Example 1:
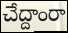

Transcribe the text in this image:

చేద్దాంరా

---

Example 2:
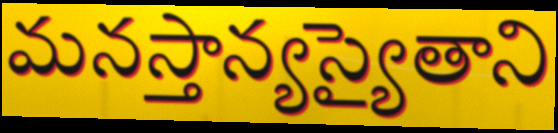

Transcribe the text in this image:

మనస్తాన్యస్యైతాని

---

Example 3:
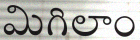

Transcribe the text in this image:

మిగిలాం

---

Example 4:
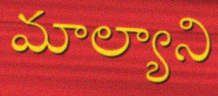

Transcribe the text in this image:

మాల్యాని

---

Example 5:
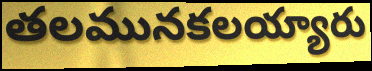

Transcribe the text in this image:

తలమునకలయ్యారు